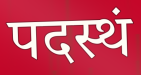
पदस्थं